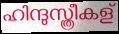
ഹിന്ദുസ്ത്രീകള്